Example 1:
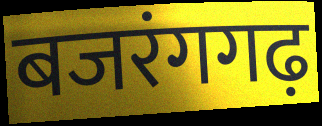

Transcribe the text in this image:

बजरंगगढ़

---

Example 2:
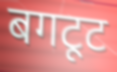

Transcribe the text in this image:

बगटूट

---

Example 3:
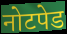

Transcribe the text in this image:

नोटपेड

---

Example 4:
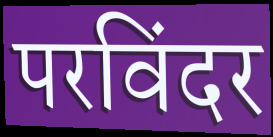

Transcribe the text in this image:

परविंदर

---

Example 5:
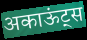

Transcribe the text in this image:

अकाऊंट्स